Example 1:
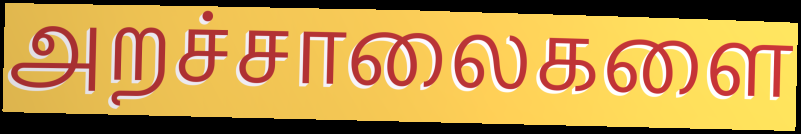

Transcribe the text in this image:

அறச்சாலைகளை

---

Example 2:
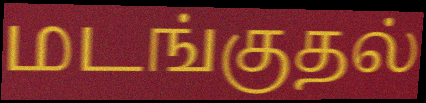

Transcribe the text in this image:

மடங்குதல்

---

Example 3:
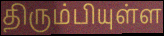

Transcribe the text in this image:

திரும்பியுள்ள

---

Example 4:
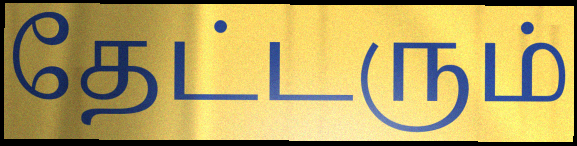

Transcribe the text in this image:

தேட்டரும்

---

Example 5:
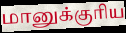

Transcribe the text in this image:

மானுக்குரிய